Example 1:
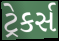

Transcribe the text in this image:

ટ્રેકર્સ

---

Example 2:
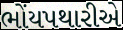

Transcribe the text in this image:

ભોંયપથારીએ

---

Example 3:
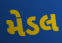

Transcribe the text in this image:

મેડલ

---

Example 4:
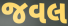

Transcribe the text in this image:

જવલ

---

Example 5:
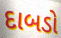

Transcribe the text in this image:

દાબડો